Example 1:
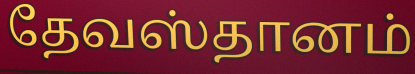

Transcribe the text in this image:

தேவஸ்தானம்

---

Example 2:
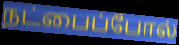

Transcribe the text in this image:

நட்பைப்போல்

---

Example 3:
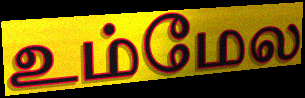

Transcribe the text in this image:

உம்மேல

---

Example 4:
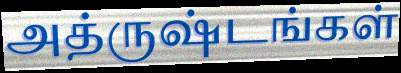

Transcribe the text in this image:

அத்ருஷ்டங்கள்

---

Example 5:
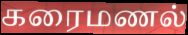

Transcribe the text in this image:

கரைமணல்